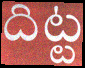
దిట్ట